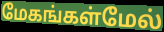
மேகங்கள்மேல்